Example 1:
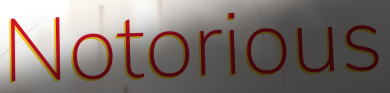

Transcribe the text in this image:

Notorious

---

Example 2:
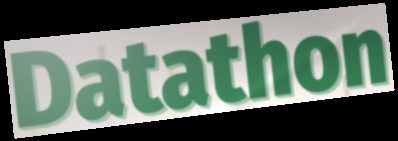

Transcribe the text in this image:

Datathon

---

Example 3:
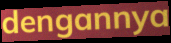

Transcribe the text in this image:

dengannya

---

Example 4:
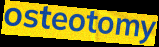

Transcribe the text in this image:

osteotomy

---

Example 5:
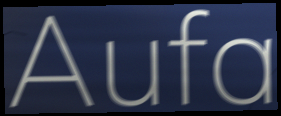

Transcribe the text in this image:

Aufa